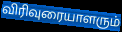
விரிவுரையாளரும்